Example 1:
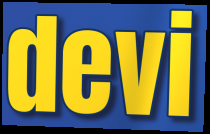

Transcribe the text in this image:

devi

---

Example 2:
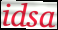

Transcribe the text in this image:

idsa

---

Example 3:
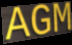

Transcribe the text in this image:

AGM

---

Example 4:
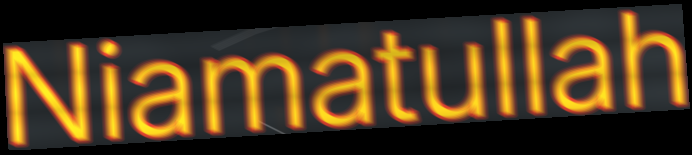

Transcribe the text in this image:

Niamatullah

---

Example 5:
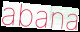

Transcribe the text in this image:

abana